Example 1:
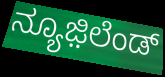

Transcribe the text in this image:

ನ್ಯೂಜ಼ಿಲೆಂಡ್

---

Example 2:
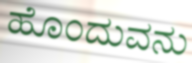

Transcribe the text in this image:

ಹೊಂದುವನು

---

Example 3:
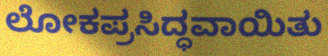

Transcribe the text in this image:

ಲೋಕಪ್ರಸಿದ್ಧವಾಯಿತು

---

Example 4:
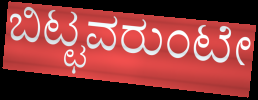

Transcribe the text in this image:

ಬಿಟ್ಟವರುಂಟೇ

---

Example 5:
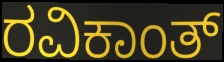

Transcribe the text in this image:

ರವಿಕಾಂತ್